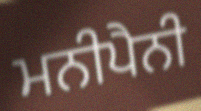
ਮਨੀਪੈਨੀ